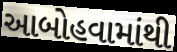
આબોહવામાંથી